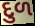
દુળ